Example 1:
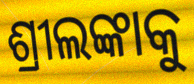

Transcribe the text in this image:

ଶ୍ରୀଲଙ୍କାକୁ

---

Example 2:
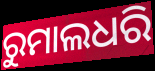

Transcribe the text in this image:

ରୁମାଲଧରି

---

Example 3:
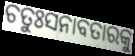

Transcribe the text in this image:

ଚତୁଃସନାବତାରକୁ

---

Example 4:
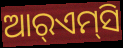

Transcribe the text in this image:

ଆର୍‌ଏମ୍‌ସି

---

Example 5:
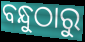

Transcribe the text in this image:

ବନ୍ଧୁଠାରୁ